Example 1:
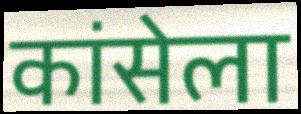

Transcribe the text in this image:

कांसेला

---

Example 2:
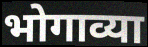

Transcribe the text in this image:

भोगाव्या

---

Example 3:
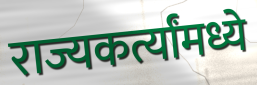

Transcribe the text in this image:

राज्यकर्त्यांमध्ये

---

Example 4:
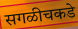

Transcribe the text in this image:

सगळीचकडे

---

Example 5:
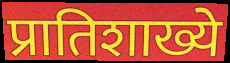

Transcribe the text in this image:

प्रातिशाख्ये